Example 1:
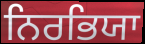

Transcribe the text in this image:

ਨਿਰਭਿਯਾ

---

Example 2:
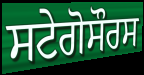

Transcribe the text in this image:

ਸਟੇਗੋਸੌਰਸ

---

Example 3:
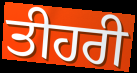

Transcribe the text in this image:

ਤੀਹਰੀ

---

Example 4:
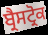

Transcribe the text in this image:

ਬ੍ਰੈਸਟ੍ਰੋਕ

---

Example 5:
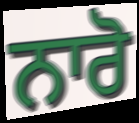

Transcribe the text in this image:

ਨਾਰੋ